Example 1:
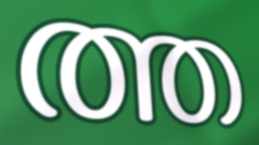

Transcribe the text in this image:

ത്ത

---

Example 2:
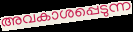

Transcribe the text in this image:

അവകാശപ്പെടുന്ന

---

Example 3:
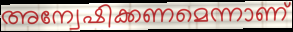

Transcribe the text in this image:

അന്വേഷിക്കണമെന്നാണ്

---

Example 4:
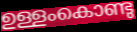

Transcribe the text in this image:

ഉള്ളംകൊണ്ടു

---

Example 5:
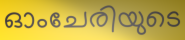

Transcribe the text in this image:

ഓംചേരിയുടെ